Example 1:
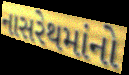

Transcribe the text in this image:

નાસરેથમાંનો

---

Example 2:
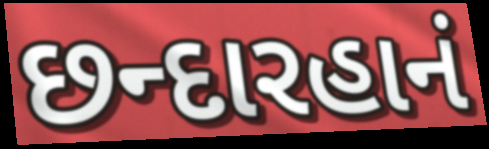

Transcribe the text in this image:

છન્દારહાનં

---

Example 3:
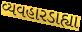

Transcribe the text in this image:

વ્યવહારડાહ્યા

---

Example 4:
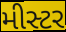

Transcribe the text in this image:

મીસ્ટર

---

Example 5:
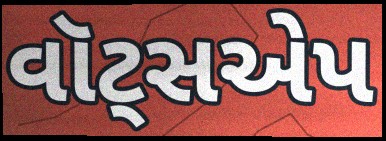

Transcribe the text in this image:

વૉટ્સએપ